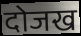
दोजख